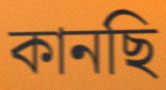
কানছি